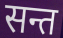
सन्त